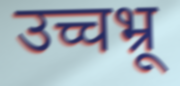
उच्चभ्रू